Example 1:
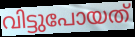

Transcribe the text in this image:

വിട്ടുപോയത്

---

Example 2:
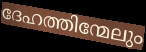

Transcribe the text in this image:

ദേഹത്തിന്മേലും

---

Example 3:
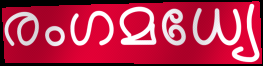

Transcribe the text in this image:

രംഗമധ്യേ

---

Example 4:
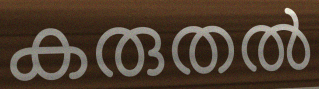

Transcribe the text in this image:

കരുതൽ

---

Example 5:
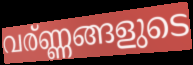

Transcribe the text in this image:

വര്ണ്ണങ്ങളുടെ